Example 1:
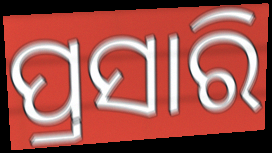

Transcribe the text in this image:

ପ୍ରସାରି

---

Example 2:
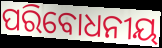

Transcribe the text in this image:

ପରିବୋଧନୀୟ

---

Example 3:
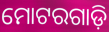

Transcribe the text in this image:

ମୋଟରଗାଡ଼ି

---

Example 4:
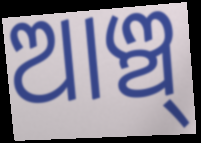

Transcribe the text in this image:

ଆଞ୍ଚ୍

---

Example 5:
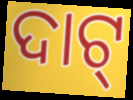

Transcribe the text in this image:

ଦାଟ୍